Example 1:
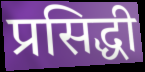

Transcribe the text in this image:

प्रसिद्धी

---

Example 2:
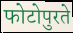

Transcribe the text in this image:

फोटोपुरते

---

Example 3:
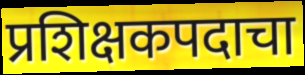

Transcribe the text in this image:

प्रशिक्षकपदाचा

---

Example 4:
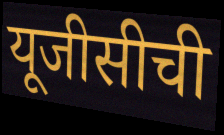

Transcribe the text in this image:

यूजीसीची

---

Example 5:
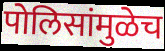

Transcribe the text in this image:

पोलिसांमुळेच